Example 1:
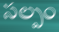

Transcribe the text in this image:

సల్పం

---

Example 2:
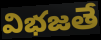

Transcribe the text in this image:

విభజతే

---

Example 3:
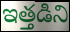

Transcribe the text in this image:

ఇత్తడిని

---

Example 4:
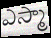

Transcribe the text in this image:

ఎస్మా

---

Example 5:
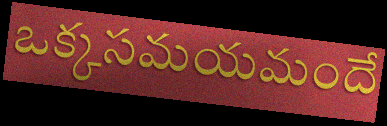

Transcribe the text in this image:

ఒక్కసమయమందే